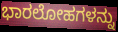
ಭಾರಲೋಹಗಳನ್ನು